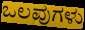
ಒಲವುಗಳು